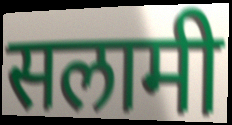
सलामी